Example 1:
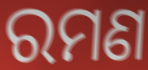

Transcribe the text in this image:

ରମଣ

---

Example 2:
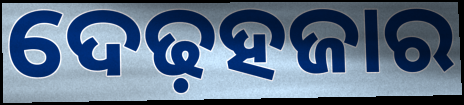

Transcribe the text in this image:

ଦେଢ଼ହଜାର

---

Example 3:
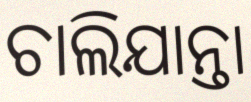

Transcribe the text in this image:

ଚାଲିଯାନ୍ତା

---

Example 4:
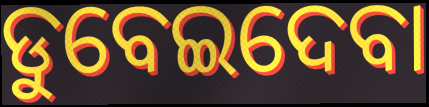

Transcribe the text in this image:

ଡୁବେଇଦେବା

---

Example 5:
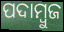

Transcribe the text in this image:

ପଦାମ୍ବୁଜ